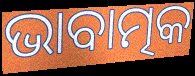
ଭାବାତ୍ମକ